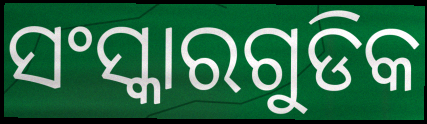
ସଂସ୍କାରଗୁଡିକ